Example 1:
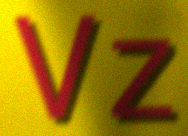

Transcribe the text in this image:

Vz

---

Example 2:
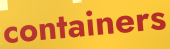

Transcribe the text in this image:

containers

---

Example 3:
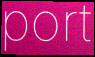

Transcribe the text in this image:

port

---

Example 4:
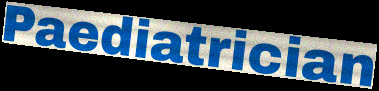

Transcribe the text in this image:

Paediatrician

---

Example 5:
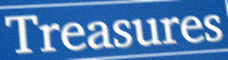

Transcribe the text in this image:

Treasures